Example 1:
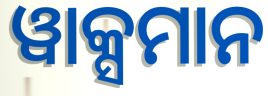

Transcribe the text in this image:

ୱାକ୍ସମାନ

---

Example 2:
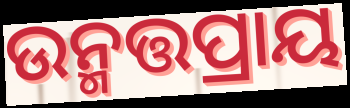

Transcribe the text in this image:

ଉନ୍ମତ୍ତପ୍ରାୟ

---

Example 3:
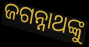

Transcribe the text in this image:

ଜଗନ୍ନାଥଙ୍କୁ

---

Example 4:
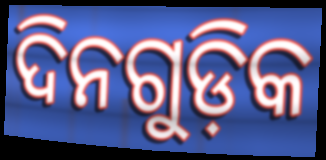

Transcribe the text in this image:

ଦିନଗୁଡ଼ିକ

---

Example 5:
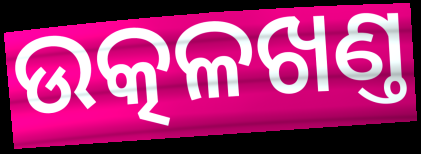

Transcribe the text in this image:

ଉତ୍କଳଖଣ୍ତ